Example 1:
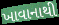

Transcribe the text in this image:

ખાવાનાથી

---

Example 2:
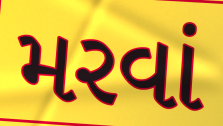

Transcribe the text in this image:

મરવાં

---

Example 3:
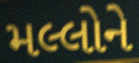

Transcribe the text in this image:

મલ્લોને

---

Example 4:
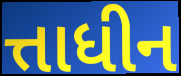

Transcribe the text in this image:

ત્તાધીન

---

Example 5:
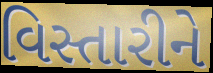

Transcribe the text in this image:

વિસ્તારીને